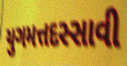
યુગમત્તદસ્સાવી